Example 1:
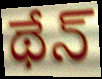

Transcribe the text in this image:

థేన్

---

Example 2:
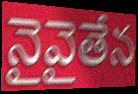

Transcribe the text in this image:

నైవైతేన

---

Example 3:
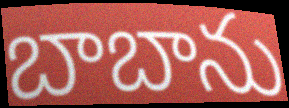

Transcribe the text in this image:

బాబాను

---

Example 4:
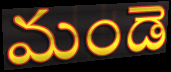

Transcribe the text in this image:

మండె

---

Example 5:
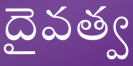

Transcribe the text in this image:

దైవత్వ